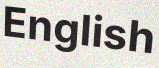
English